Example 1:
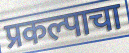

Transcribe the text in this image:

प्रकल्पाचा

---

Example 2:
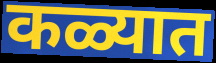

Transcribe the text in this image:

कळ्यात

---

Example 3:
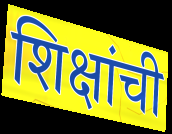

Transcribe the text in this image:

शिक्षांची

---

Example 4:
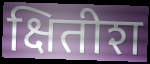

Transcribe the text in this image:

क्षितीश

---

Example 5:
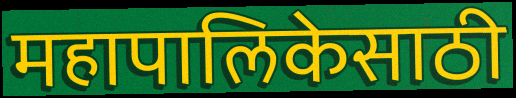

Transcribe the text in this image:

महापालिकेसाठी